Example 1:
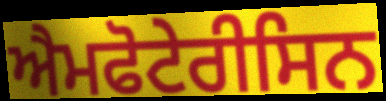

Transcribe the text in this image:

ਐਮਫੋਟੇਰੀਸਿਨ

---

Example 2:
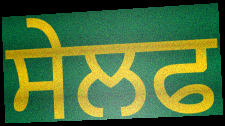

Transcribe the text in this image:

ਸੇਲਫ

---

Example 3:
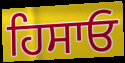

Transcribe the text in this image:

ਹਿਸਾਓ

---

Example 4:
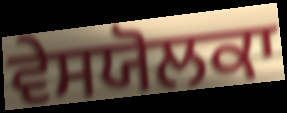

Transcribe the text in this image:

ਵੇਸਯੋਲਕਾ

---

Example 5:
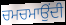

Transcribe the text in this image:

ਚਮਚਮਾਉਂਦੀ